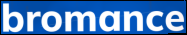
bromance